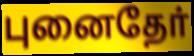
புனைதேர்